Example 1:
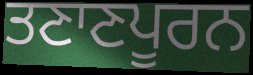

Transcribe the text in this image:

ਤਣਾਣਪੂਰਨ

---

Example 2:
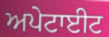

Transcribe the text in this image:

ਅਪੇਟਾਈਟ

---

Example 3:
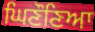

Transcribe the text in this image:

ਘਿਣੌਣਿਆ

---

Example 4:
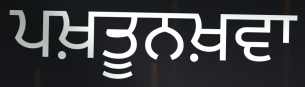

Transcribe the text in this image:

ਪਖ਼ਤੂਨਖ਼ਵਾ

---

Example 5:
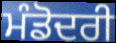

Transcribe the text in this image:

ਮੰਡੋਦਰੀ